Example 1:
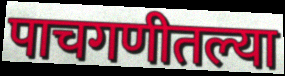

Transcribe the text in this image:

पाचगणीतल्या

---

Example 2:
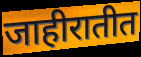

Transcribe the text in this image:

जाहीरातीत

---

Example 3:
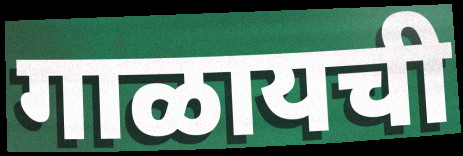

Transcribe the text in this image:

गाळायची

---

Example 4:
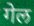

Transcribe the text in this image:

गेल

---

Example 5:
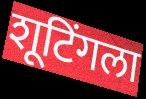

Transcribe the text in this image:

शूटिंगला